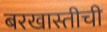
बरखास्तीची